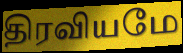
திரவியமே